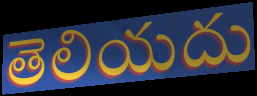
తెలియదు